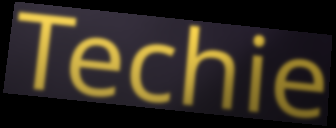
Techie